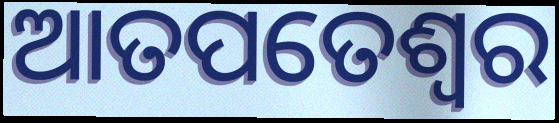
ଆତପତେଶ୍ୱର